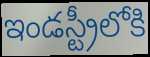
ఇండస్ట్రీలోకి